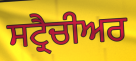
ਸਟ੍ਰੈਚੀਅਰ